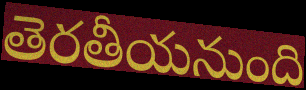
తెరతీయనుంది